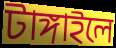
টাঙ্গাইলে